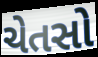
ચેતસો